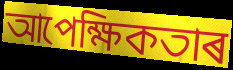
আপেক্ষিকতাৰ